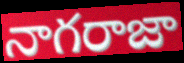
నాగరాజా